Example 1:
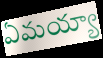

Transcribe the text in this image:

ఏమయ్యా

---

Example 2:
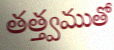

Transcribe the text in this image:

తత్త్వముతో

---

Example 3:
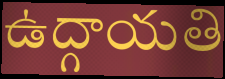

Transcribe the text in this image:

ఉద్గాయతి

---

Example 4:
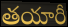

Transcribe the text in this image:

తయారీ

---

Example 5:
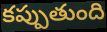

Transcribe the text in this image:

కప్పుతుంది